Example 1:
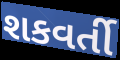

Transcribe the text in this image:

શકવર્તી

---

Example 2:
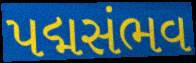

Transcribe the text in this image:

પદ્મસંભવ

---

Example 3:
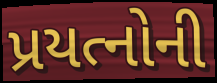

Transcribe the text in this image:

પ્રયત્નોની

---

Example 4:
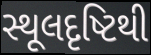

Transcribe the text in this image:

સ્થૂલદૃષ્ટિથી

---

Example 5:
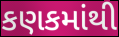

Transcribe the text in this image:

કણકમાંથી